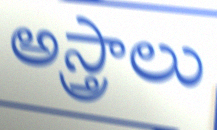
అస్త్రాలు